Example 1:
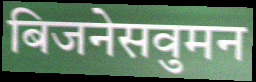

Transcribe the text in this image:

बिजनेसवुमन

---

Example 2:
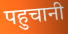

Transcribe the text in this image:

पहुचानी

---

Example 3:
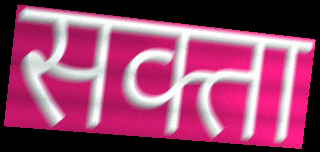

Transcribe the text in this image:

सक्ता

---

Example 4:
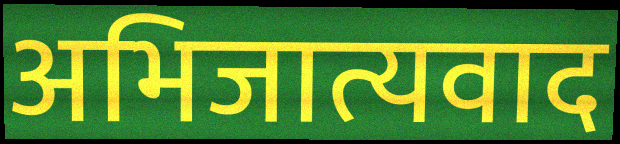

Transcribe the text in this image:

अभिजात्यवाद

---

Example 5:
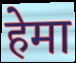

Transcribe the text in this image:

हेमा